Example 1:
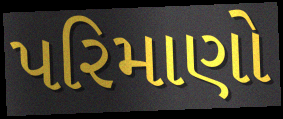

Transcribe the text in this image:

પરિમાણો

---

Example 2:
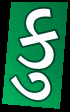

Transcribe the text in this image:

કુ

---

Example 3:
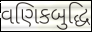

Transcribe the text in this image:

વણિકબુદ્ધિ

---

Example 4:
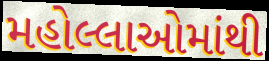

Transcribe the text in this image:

મહોલ્લાઓમાંથી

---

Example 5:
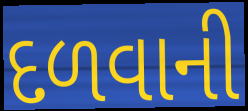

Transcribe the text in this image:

દળવાની